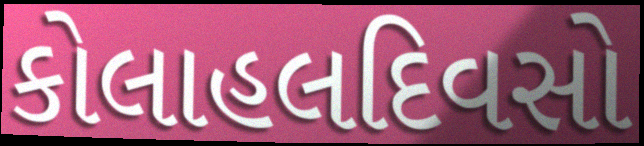
કોલાહલદિવસો